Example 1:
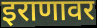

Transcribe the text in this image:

इराणावर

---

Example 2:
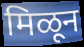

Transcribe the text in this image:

मिळून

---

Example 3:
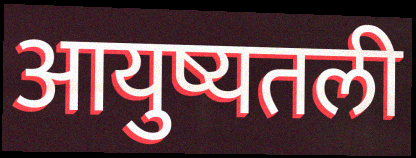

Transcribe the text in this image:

आयुष्यतली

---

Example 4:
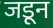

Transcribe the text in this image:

जडून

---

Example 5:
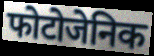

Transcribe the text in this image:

फोटोजेनिक